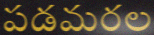
పడమరల